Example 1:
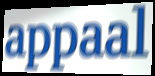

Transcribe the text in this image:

appaal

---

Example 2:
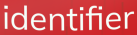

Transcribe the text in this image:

identifier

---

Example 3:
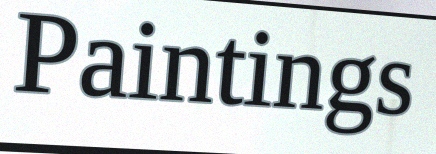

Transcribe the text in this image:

Paintings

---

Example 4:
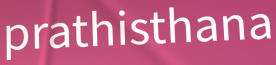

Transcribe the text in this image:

prathisthana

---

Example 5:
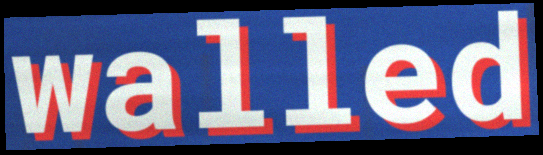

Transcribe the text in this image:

walled